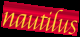
nautilus